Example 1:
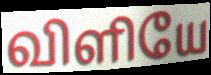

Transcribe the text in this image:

விளியே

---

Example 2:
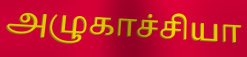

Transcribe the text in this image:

அழுகாச்சியா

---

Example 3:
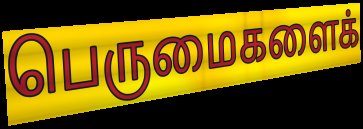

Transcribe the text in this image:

பெருமைகளைக்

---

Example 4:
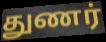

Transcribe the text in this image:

துணர்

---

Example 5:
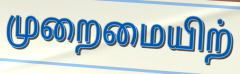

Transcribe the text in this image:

முறைமையிற்